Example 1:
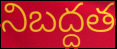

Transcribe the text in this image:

నిబద్దత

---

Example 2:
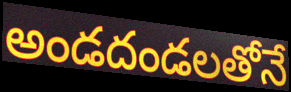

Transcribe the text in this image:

అండదండలతోనే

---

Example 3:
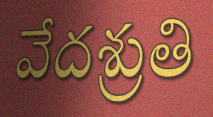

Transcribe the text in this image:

వేదశ్రుతి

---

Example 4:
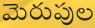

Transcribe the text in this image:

మెరుపుల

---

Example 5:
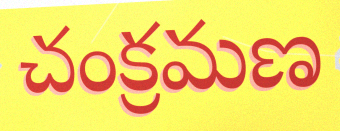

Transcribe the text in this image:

చంక్రమణ